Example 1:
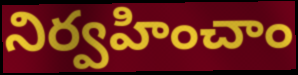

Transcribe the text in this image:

నిర్వహించాం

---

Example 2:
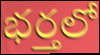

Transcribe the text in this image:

భర్తలో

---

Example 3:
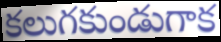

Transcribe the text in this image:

కలుగకుండుగాక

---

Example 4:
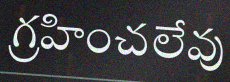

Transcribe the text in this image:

గ్రహించలేవు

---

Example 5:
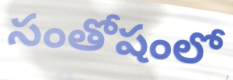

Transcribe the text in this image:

సంతోషంలో